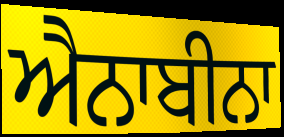
ਐਨਾਬੀਨਾ